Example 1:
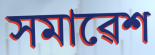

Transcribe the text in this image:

সমাৱেশ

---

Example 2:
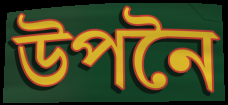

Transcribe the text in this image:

উপনৈ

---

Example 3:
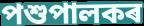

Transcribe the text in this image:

পশুপালকৰ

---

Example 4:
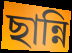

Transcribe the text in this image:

ছান্নি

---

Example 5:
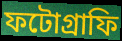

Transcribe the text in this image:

ফটোগ্ৰাফি